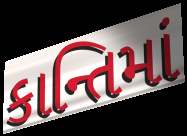
કાન્તિમાં